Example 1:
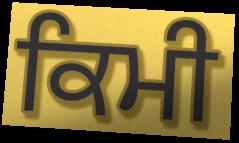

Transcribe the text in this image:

ਕਿਮੀ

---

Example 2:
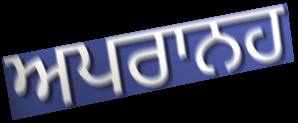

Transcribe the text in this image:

ਅਪਰਾਨਹ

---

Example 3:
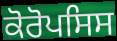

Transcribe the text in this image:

ਕੋਰੋਪਸਿਸ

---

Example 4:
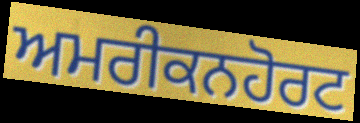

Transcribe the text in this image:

ਅਮਰੀਕਨਹੋਰਟ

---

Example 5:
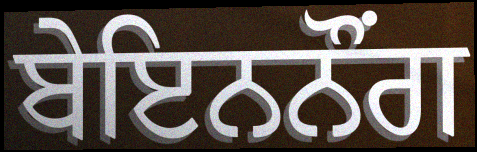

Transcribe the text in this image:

ਬੇਇਨਨੌੰਗ